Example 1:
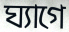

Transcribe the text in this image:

ঘ্যাগে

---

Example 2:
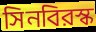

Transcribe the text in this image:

সিনবিরস্ক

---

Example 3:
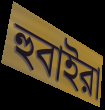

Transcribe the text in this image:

হুবাইরা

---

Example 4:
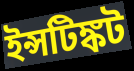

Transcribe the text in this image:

ইন্সটিঙ্কট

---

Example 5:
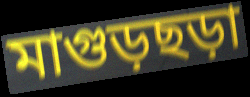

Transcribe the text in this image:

মাগুড়ছড়া